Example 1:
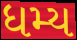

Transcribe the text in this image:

ધમ્ય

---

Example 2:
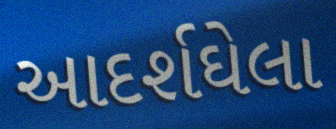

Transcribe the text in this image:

આદર્શઘેલા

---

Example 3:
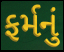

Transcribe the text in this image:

ફર્મનું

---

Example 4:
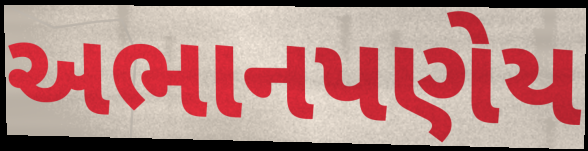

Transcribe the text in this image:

અભાનપણેય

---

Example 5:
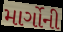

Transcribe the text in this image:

માર્ગોની